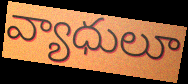
వ్యాధులూ